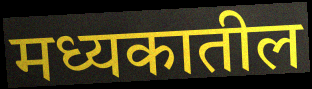
मध्यकातील